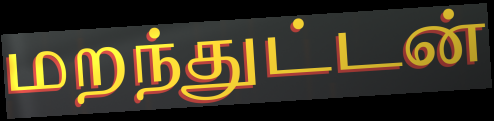
மறந்துட்டன்